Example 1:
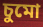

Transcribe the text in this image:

চুমো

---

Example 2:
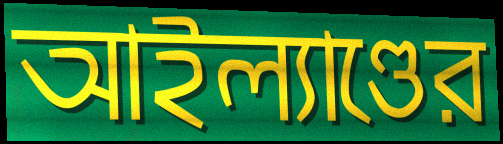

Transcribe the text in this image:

আইল্যাণ্ডের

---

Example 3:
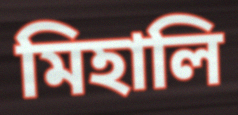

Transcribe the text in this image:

মিহালি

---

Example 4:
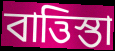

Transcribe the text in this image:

বাত্তিস্তা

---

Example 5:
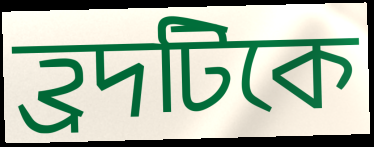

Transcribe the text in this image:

হ্রদটিকে